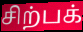
சிற்பக்